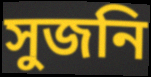
সুজনি